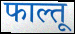
फाल्तू